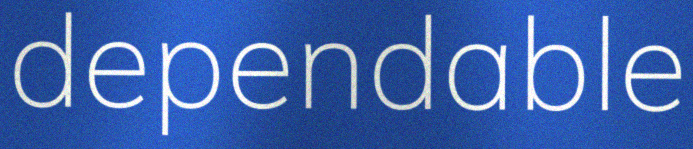
dependable